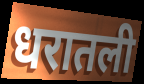
धरातली